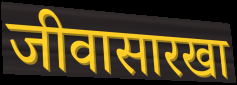
जीवासारखा